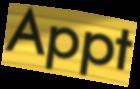
Appt